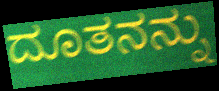
ದೂತನನ್ನು